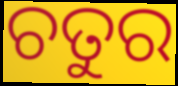
ଚତୁର